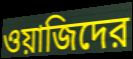
ওয়াজিদের